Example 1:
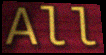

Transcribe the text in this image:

All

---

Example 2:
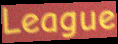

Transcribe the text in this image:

League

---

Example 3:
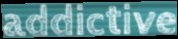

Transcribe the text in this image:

addictive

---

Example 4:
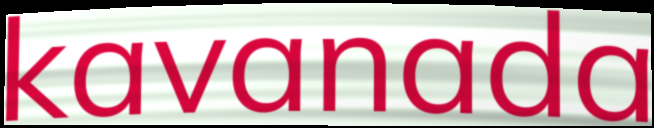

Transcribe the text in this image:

kavanada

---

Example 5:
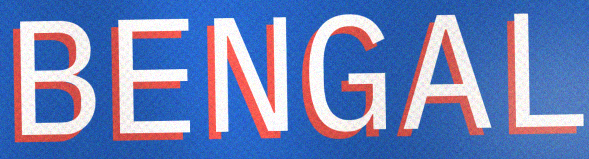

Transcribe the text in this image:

BENGAL